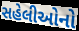
સહેલીઓનો